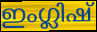
ഇംഗ്ലിഷ്